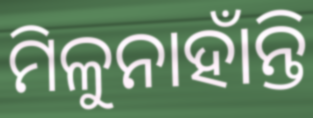
ମିଳୁନାହାଁନ୍ତି